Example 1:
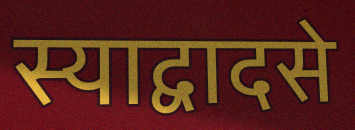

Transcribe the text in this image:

स्याद्वादसे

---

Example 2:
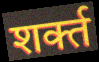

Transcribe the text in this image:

शर्क्त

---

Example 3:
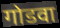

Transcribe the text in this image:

गोडवा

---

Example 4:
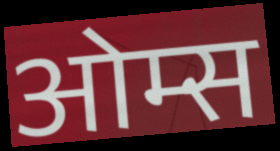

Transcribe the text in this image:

ओम्स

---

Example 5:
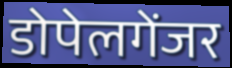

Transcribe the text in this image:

डोपेलगेंजर